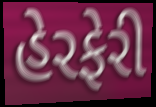
હેરફેરી